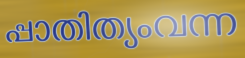
പ്പാതിത്യംവന്ന